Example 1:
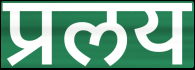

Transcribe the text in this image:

प्रलय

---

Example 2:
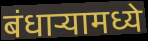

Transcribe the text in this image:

बंधाऱ्यामध्ये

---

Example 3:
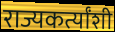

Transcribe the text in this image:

राज्यकर्त्यांशी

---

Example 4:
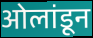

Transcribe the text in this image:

ओलांडून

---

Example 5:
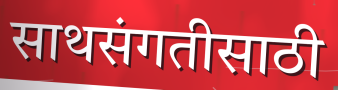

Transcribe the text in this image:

साथसंगतीसाठी